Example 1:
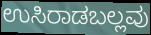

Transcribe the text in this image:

ಉಸಿರಾಡಬಲ್ಲವು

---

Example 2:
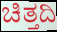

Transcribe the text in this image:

ಚಿತ್ತದಿ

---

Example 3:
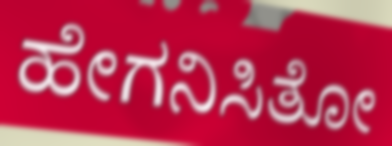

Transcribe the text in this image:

ಹೇಗನಿಸಿತೋ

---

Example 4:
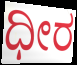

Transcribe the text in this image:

ಧೀರ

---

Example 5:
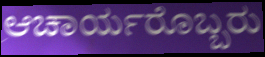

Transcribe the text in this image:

ಆಚಾರ್ಯರೊಬ್ಬರು